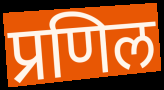
प्रणिल